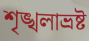
শৃঙ্খলাভ্রষ্ট